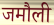
जमौली